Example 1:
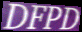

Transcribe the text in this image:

DFPD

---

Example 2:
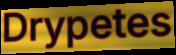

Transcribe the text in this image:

Drypetes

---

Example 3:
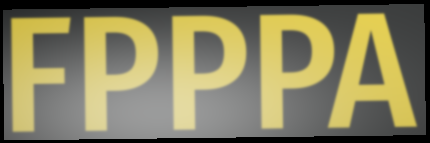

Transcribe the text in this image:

FPPPA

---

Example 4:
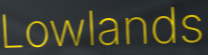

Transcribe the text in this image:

Lowlands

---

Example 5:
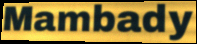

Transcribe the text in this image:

Mambady